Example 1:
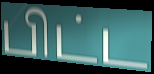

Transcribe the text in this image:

பிட்ட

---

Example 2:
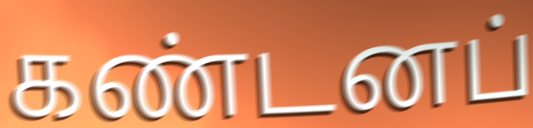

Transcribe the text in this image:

கண்டனப்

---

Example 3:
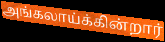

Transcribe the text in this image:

அங்கலாய்க்கின்றார்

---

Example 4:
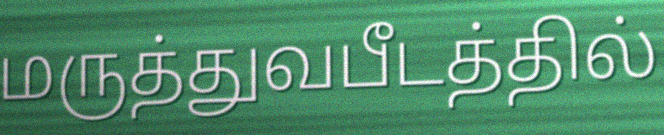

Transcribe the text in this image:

மருத்துவபீடத்தில்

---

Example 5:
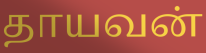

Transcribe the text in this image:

தாயவன்